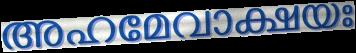
അഹമേവാക്ഷയഃ